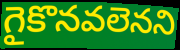
గైకొనవలెనని